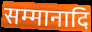
सम्मानादि